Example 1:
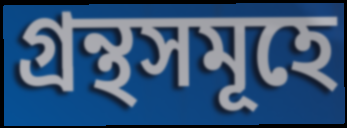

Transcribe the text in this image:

গ্রন্থসমূহে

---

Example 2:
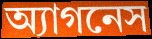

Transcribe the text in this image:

অ্যাগনেস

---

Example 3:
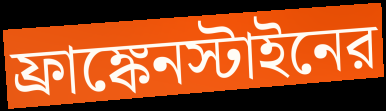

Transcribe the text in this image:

ফ্রাঙ্কেনস্টাইনের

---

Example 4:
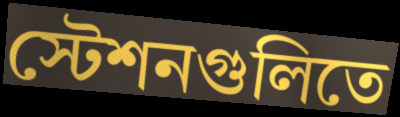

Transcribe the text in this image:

স্টেশনগুলিতে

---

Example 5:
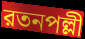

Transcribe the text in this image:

রতনপল্লী